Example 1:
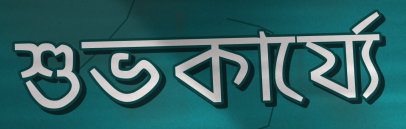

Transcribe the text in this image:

শুভকার্য্যে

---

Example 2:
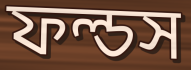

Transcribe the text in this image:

ফল্ডস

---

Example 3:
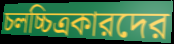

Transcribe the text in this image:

চলচ্চিত্রকারদের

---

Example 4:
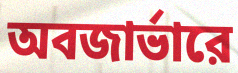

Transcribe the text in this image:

অবজার্ভারে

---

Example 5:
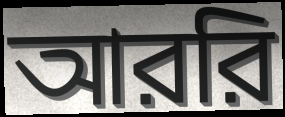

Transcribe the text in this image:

আররি